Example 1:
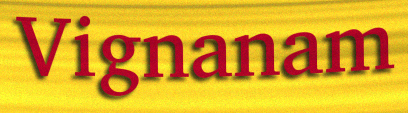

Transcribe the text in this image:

Vignanam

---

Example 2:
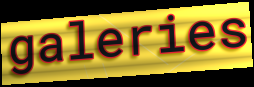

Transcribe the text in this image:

galeries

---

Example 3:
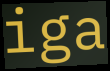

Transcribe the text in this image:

iga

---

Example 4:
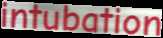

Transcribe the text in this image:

intubation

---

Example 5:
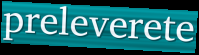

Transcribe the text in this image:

preleverete